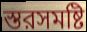
স্তরসমষ্টি